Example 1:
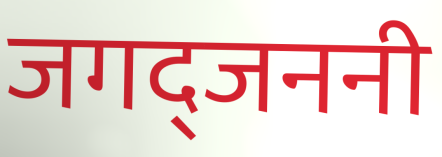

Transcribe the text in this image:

जगद्जननी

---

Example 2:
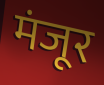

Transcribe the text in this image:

मंजूर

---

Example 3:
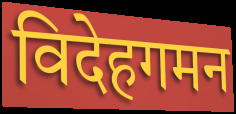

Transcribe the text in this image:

विदेहगमन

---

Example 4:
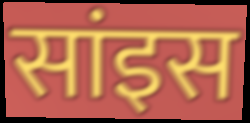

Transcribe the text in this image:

सांइस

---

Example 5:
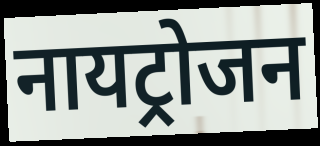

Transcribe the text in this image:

नायट्रोजन